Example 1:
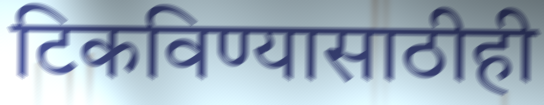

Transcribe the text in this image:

टिकविण्यासाठीही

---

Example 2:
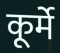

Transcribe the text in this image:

कूर्मे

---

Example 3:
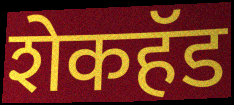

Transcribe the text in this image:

शेकहॅड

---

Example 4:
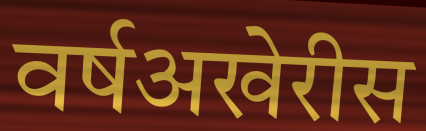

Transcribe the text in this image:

वर्षअखेरीस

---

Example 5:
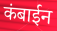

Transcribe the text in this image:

कंबाईन